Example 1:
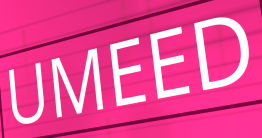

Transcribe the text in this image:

UMEED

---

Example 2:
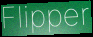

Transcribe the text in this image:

Flipper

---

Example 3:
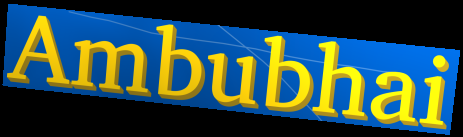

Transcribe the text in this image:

Ambubhai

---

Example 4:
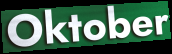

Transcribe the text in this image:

Oktober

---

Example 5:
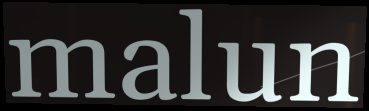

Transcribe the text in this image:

malun